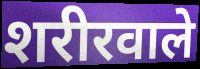
शरीरवाले